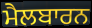
ਮੈਲਬਾਰਨ